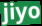
jiyo